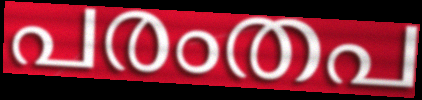
പരംതപ